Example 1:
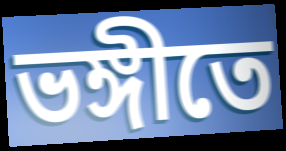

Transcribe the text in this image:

ভঙ্গীতে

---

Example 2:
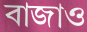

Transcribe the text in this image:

বাজাও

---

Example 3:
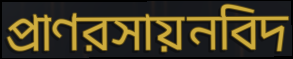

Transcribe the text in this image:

প্রাণরসায়নবিদ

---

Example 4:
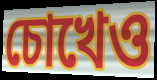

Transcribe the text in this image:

চোখেও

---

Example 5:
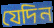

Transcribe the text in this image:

যেদিন